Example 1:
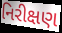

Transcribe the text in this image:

નિરીક્ષણ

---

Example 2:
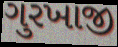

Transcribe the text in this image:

ગુરખાજી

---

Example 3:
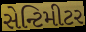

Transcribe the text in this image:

સેન્ટિમીટર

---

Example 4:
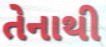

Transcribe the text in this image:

તેનાથી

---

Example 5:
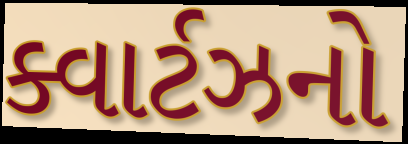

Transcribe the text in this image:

ક્વાર્ટઝનો